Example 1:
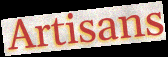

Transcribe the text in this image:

Artisans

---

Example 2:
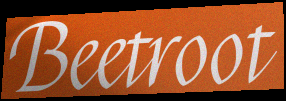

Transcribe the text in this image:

Beetroot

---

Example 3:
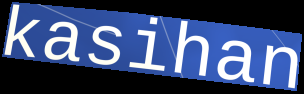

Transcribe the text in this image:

kasihan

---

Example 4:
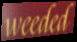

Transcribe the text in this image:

weeded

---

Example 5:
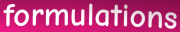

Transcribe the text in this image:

formulations